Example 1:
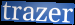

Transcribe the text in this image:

trazer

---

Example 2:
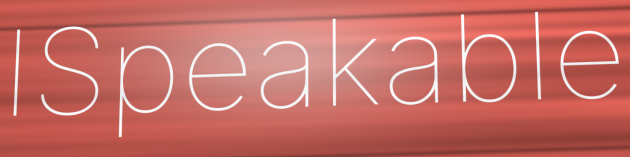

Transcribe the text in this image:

ISpeakable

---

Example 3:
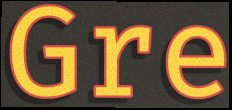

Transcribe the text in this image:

Gre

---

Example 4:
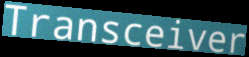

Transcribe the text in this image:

Transceiver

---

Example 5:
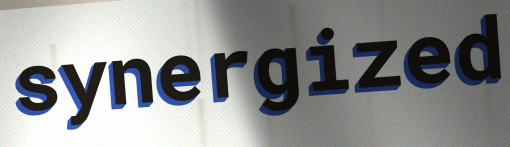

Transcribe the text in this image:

synergized